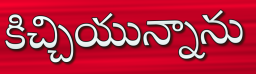
కిచ్చియున్నాను